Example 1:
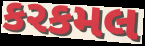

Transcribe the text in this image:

કરકમલ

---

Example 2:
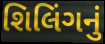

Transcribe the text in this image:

શિલિંગનું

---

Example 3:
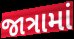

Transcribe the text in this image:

જાત્રામાં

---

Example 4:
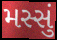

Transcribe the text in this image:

મસ્સું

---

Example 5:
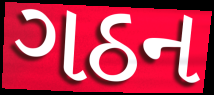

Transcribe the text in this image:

ગઠન